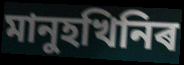
মানুহখিনিৰ